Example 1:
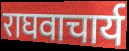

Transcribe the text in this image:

राघवाचार्य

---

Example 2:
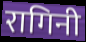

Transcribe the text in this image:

रागिनी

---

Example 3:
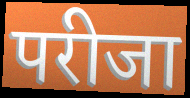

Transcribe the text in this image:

परीजा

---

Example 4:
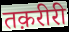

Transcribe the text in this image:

तक़रीरी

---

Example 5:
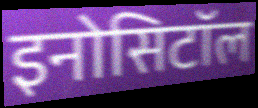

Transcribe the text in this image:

इनोसिटॉल